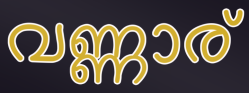
വണ്ണാര്